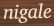
nigale